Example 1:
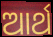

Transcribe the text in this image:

ଆର୍ଥ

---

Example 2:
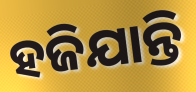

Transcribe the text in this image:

ହଜିଯାନ୍ତି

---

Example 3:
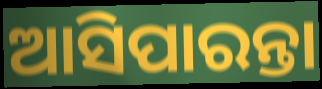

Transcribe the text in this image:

ଆସିପାରନ୍ତା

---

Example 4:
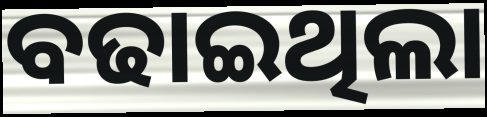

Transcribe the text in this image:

ବଢାଇଥିଲା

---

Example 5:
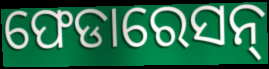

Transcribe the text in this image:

ଫେଡାରେସନ୍